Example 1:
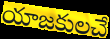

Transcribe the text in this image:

యాజకులచే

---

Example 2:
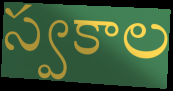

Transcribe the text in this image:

స్వకాల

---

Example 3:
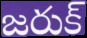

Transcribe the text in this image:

జరుక్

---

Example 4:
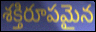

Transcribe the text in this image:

శక్తిరూపమైన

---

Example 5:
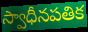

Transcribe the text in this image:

స్వాధీనపతిక